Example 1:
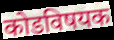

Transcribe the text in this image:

कोडविषयक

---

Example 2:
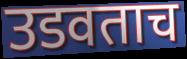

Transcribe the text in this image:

उडवताच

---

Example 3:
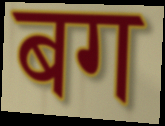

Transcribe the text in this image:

बग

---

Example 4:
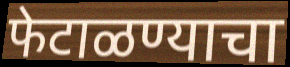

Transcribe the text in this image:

फेटाळण्याचा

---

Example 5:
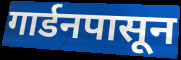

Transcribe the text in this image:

गार्डनपासून